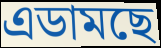
এডামছে